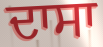
ਦਾਸਾ